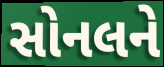
સોનલને